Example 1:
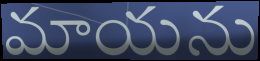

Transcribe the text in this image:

మాయను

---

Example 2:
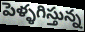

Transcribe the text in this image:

పెళ్ళగిస్తున్న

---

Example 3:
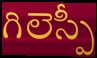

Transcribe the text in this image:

గిలెస్పీ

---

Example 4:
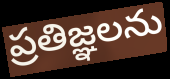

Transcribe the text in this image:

ప్రతిజ్ఞలను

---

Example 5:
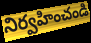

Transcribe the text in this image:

నిర్వహించండి